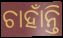
ଚାହାଁନ୍ତି